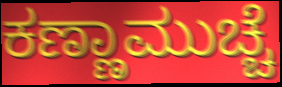
ಕಣ್ಣಾಮುಚ್ಚೆ